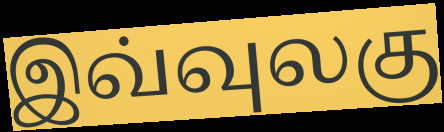
இவ்வுலகு